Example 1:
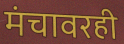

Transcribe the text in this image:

मंचावरही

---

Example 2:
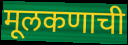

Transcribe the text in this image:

मूलकणाची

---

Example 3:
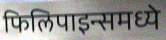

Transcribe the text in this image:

फिलिपाइन्समध्ये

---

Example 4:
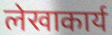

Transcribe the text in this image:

लेखाकार्य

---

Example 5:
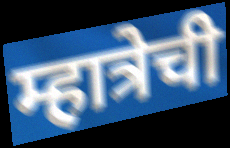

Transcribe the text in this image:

म्हात्रेची